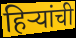
हिऱ्यांची